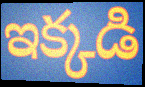
ఇక్కడి